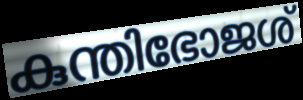
കുന്തിഭോജശ്